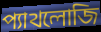
প্যাথলোজি